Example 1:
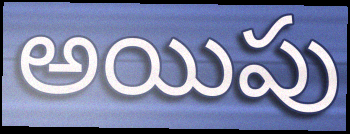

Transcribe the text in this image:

అయిపు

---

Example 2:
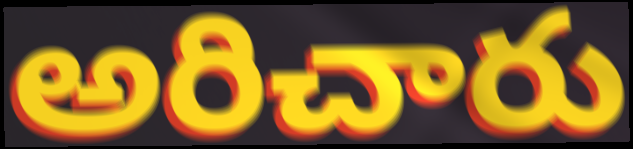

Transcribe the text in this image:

అరిచారు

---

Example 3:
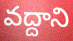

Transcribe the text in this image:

వద్దాని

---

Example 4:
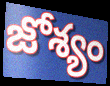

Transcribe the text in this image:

జోశ్యం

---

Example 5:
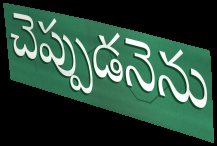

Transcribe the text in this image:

చెప్పుడనెను